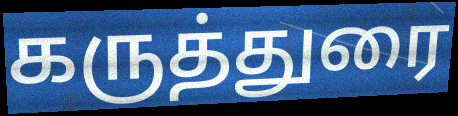
கருத்துரை